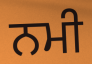
ਨਮੀ